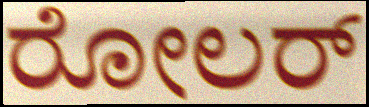
ರೋಲರ್